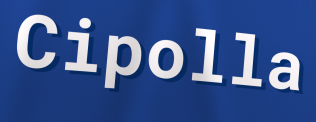
Cipolla